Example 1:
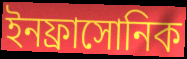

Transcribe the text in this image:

ইনফ্রাসোনিক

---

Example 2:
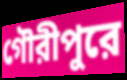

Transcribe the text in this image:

গৌরীপুরে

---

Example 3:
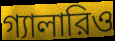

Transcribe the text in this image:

গ্যালারিও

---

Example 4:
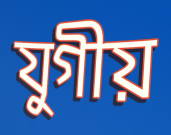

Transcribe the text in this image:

যুগীয়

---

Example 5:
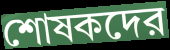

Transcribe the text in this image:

শোষকদের